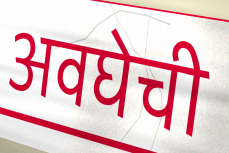
अवघेची